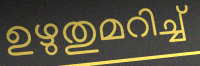
ഉഴുതുമറിച്ച്